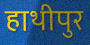
हाथीपुर